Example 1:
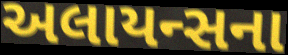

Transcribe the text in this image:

અલાયન્સના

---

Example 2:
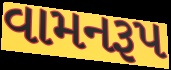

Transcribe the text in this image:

વામનરૂપ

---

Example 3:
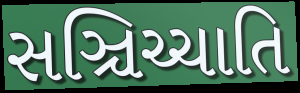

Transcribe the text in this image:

સઞ્ચિચ્ચાતિ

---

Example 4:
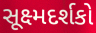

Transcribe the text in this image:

સૂક્ષ્મદર્શકો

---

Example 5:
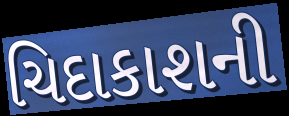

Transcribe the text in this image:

ચિદાકાશની